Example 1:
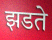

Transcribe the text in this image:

झडते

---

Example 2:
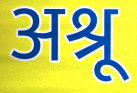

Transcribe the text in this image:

अश्रू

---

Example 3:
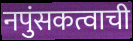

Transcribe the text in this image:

नपुंसकत्वाची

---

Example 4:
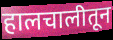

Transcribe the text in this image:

हालचालीतून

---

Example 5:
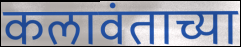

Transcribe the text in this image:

कलावंताच्या